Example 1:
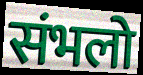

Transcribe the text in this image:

संभलो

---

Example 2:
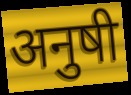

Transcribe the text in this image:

अनुषी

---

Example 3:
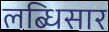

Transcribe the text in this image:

लब्धिसार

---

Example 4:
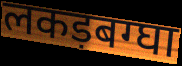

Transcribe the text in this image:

लकड़बग्घा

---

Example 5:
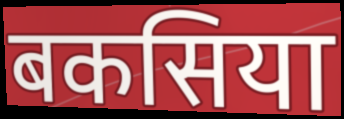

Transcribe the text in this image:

बकसिया